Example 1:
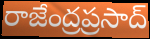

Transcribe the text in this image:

రాజేంద్రప్రసాద్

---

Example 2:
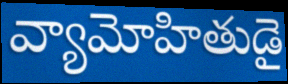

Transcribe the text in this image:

వ్యామోహితుడై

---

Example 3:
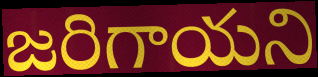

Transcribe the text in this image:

జరిగాయని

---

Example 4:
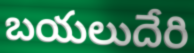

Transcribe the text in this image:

బయలుదేరి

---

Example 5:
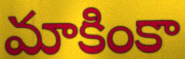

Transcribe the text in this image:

మాకింకా